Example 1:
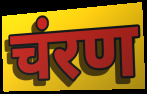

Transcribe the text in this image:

चंरण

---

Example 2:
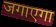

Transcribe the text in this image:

जगाएगा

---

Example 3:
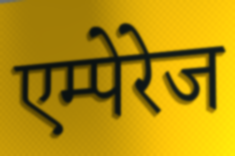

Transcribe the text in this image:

एम्पेरेज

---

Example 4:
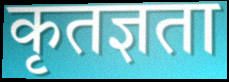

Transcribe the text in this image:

कृतज्ञता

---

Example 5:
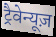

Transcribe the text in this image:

ट्रैवेन्यूज़